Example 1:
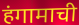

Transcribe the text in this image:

हंगामाची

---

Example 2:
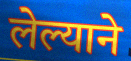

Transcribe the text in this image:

लेल्याने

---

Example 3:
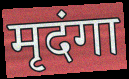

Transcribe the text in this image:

मृदंगा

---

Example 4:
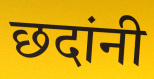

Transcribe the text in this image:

छदांनी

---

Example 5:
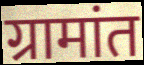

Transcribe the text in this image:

ग्रामांत